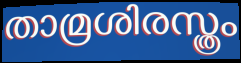
താമ്രശിരസ്ത്രം